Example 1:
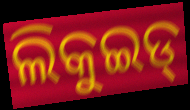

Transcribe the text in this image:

ଲିକୁଇଡ୍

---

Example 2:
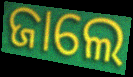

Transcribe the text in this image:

ଜାଲେ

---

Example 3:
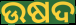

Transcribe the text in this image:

ଉଷଦ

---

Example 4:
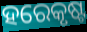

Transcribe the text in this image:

ହରେକୃଷ୍ଟ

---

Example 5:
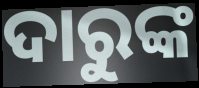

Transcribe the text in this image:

ଦାରୁଙ୍କ